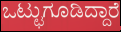
ಒಟ್ಟುಗೂಡಿದ್ದಾರೆ